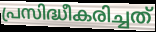
പ്രസിദ്ധീകരിച്ചത്